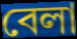
বেলা